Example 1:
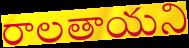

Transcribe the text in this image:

రాలతాయని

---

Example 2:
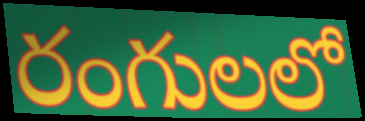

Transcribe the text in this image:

రంగులలో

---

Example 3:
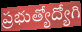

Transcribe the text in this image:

ప్రభుత్యోద్యోగి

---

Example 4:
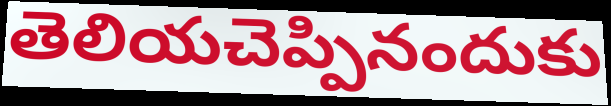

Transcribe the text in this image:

తెలియచెప్పినందుకు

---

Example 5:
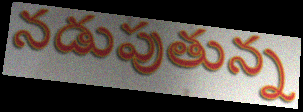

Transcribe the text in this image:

నడుపుతున్న